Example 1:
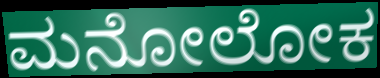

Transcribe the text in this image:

ಮನೋಲೋಕ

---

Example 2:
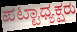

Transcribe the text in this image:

ಪಟ್ಟಾಧ್ಯಕ್ಷರು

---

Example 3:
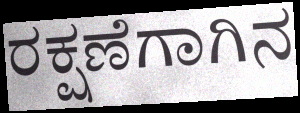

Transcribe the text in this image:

ರಕ್ಷಣೆಗಾಗಿನ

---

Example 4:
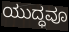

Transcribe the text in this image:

ಯುದ್ಧವೂ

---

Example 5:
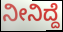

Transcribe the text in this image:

ನೀನಿದ್ದೆ